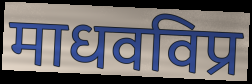
माधवविप्र